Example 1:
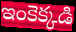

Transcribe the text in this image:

ఇంకెక్కడి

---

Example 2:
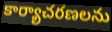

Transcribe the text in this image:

కార్యాచరణలను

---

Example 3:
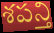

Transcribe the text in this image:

శపన్తి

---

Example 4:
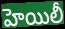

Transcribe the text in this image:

హెయిలీ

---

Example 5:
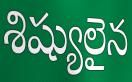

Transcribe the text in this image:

శిష్యులైన